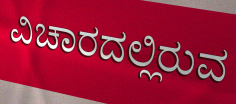
ವಿಚಾರದಲ್ಲಿರುವ